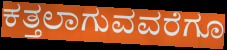
ಕತ್ತಲಾಗುವವರೆಗೂ